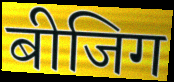
बीजिग